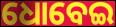
ଧୋବେଇ